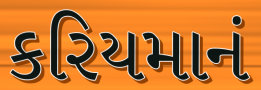
કરિયમાનં